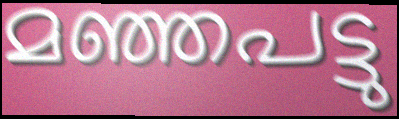
മഞ്ഞപട്ടു